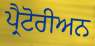
ਪ੍ਰੈਟੋਰੀਅਨ